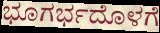
ಭೂಗರ್ಭದೊಳಗೆ